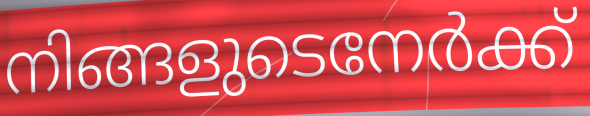
നിങ്ങളുടെനേർക്ക്